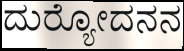
ದುರ್‍ಯೋದನನ